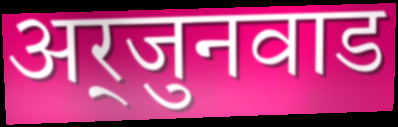
अर्जुनवाड